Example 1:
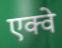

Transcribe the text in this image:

एक्वे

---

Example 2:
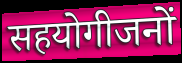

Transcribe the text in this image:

सहयोगीजनों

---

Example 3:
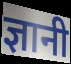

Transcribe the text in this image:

ज्ञानी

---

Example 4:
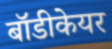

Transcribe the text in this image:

बॉडीकेयर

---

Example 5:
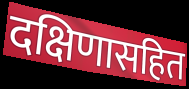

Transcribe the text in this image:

दक्षिणासहित